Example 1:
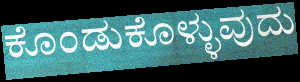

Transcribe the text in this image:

ಕೊಂಡುಕೊಳ್ಳುವುದು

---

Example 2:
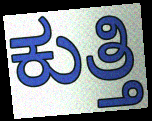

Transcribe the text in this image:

ಕುತ್ತಿ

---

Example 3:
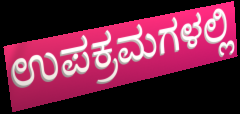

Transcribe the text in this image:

ಉಪಕ್ರಮಗಳಲ್ಲಿ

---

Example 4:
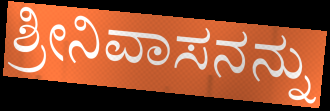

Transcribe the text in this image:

ಶ್ರೀನಿವಾಸನನ್ನು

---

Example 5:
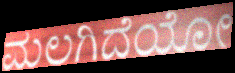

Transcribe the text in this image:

ಮಲಗಿದೆಯೋ